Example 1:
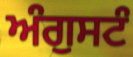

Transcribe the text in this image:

ਅੰਗੁਸਟੰ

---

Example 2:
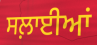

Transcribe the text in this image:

ਸਲ਼ਾਈਆਂ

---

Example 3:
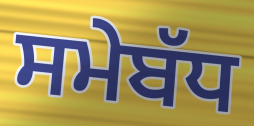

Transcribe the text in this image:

ਸਮੇਬੱਧ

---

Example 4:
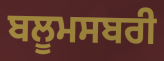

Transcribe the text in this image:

ਬਲੂਮਸਬਰੀ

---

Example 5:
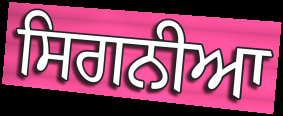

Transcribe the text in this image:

ਸਿਗਨੀਆ